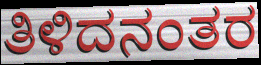
ತಿಳಿದನಂತರ